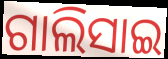
ଗାଲିସାଇ